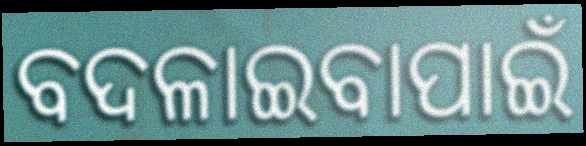
ବଦଳାଇବାପାଇଁ